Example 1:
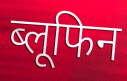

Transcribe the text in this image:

ब्लूफिन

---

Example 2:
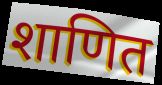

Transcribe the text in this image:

शाणित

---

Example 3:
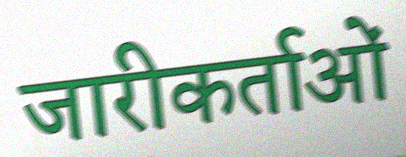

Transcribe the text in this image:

जारीकर्ताओं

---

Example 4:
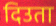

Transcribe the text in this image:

दिउता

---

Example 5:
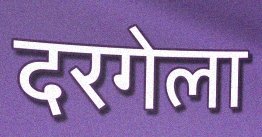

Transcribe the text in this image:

दरगेला